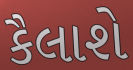
કૈલાશે